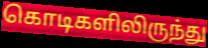
கொடிகளிலிருந்து